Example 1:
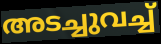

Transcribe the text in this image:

അടച്ചുവച്ച്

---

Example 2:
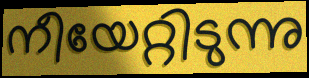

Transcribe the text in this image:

നീയേറ്റിടുന്നു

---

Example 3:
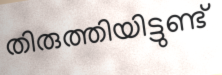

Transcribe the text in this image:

തിരുത്തിയിട്ടുണ്ട്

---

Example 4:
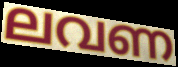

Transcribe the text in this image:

ലവണ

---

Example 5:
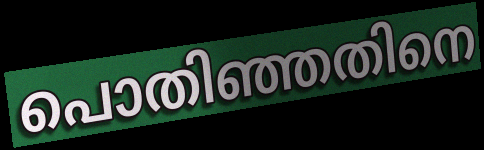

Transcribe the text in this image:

പൊതിഞ്ഞതിനെ